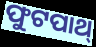
ଫୁଟପାଥ୍